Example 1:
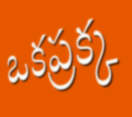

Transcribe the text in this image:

ఒకప్రక్క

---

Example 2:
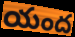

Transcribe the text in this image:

యంద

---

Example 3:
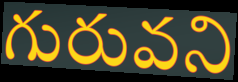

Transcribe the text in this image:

గురువని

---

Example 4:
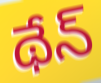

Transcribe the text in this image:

థేన్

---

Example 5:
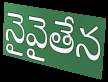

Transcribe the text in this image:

నైవైతేన